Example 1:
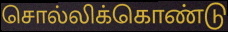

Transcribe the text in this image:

சொல்லிக்கொண்டு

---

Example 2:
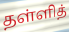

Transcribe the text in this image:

தள்ளித்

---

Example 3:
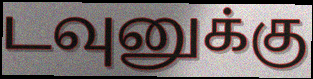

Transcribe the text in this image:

டவுனுக்கு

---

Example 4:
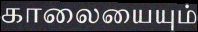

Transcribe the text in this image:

காலையையும்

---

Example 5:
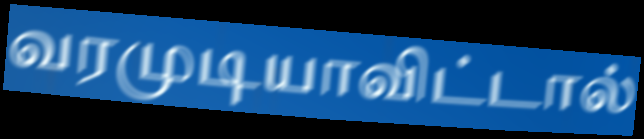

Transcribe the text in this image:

வரமுடியாவிட்டால்